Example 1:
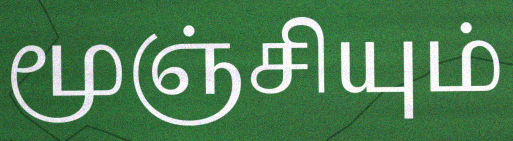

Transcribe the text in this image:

மூஞ்சியும்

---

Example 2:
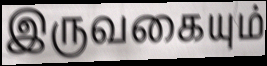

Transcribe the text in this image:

இருவகையும்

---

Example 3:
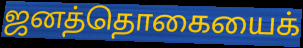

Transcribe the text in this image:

ஜனத்தொகையைக்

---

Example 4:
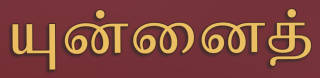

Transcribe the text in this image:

யுன்னைத்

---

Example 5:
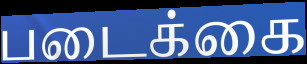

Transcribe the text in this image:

படைக்கை